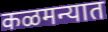
कळमन्यात